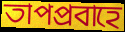
তাপপ্রবাহে